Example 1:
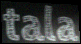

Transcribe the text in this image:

tala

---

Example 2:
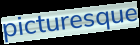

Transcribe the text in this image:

picturesque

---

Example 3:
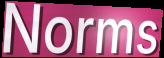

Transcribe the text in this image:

Norms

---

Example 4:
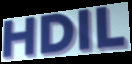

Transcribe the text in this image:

HDIL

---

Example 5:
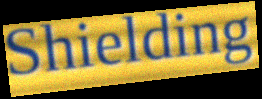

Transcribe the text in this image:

Shielding